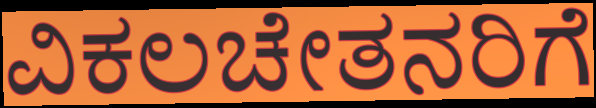
ವಿಕಲಚೇತನರಿಗೆ